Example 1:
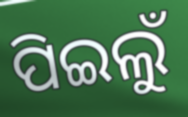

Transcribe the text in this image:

ପିଇଲୁଁ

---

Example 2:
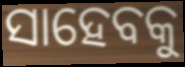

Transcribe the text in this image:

ସାହେବକୁ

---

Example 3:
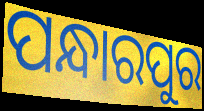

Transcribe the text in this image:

ପନ୍ଧାରପୁର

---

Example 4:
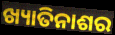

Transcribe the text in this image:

ଖ୍ୟାତିନାଶର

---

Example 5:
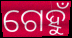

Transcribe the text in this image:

ଗେହୁଁ